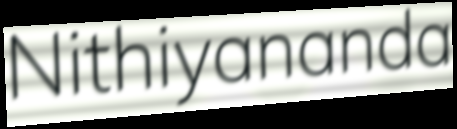
Nithiyananda